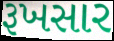
રૂખસાર